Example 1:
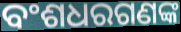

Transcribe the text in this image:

ବଂଶଧରଗଣଙ୍କ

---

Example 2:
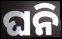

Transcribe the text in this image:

ଘନି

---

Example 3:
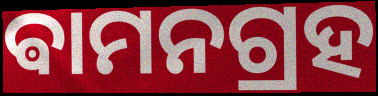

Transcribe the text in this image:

ଵାମନଗ୍ରହ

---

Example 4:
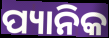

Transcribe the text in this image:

ପ୍ୟାନିକ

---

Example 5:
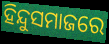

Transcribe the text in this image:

ହିନ୍ଦୁସମାଜରେ